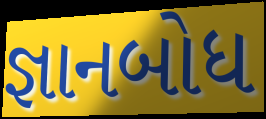
જ્ઞાનબોધ